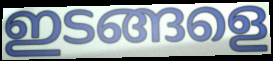
ഇടങ്ങളെ